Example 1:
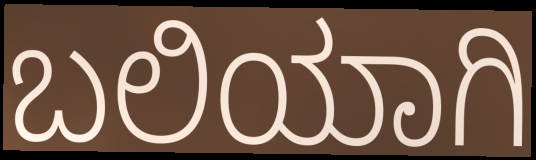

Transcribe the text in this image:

ಬಲಿಯಾಗಿ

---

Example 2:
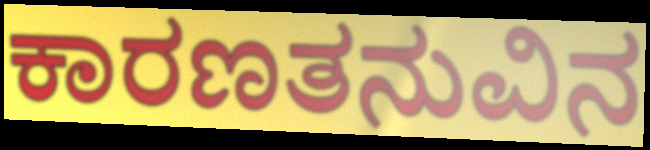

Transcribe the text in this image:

ಕಾರಣತನುವಿನ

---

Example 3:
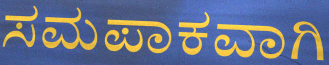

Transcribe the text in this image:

ಸಮಪಾಕವಾಗಿ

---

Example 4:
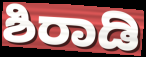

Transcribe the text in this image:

ಶಿರಾಡಿ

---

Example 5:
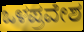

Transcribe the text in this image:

ಒಳಪ್ರವೇಶ